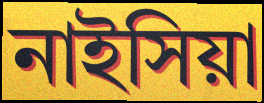
নাইসিয়া